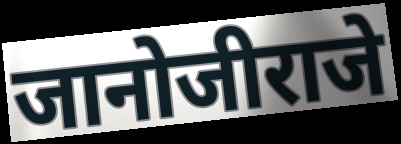
जानोजीराजे